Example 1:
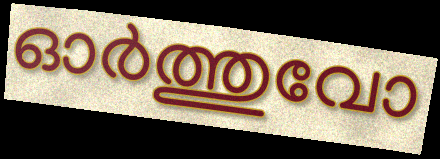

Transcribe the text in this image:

ഓർത്തുവോ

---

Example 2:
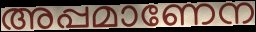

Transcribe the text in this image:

അപ്പമാണേന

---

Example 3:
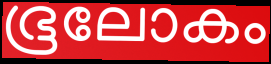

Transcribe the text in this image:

ഭൂലോകം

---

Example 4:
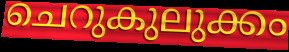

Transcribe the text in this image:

ചെറുകുലുക്കം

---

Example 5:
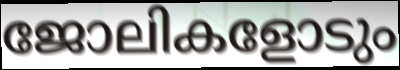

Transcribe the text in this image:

ജോലികളോടും